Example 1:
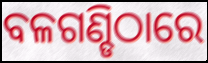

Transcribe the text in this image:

ବଳଗଣ୍ଡିଠାରେ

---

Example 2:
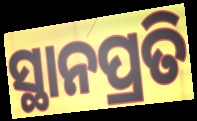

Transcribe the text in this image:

ସ୍ଥାନପ୍ରତି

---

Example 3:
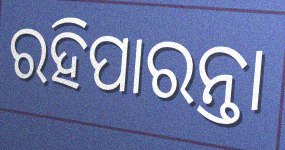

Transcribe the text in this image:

ରହିପାରନ୍ତା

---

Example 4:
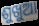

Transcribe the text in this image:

ଶୁଖୁଆ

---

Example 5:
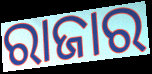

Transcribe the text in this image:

ରାଜାର